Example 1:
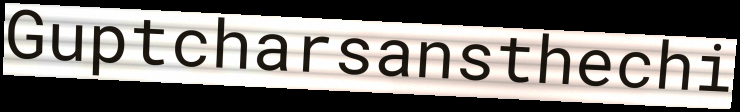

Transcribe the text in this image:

Guptcharsansthechi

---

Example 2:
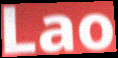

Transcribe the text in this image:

Lao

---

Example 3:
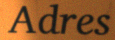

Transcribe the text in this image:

Adres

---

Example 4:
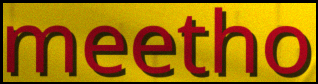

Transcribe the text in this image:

meetho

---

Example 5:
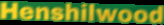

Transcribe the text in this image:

Henshilwood